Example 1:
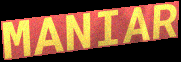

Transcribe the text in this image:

MANIAR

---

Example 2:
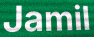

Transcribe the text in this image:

Jamil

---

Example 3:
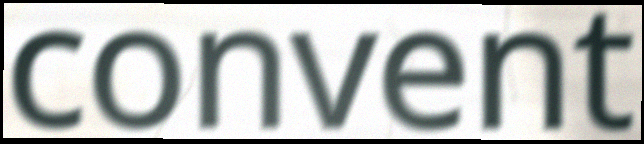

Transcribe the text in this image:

convent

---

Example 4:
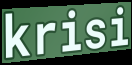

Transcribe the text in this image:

krisi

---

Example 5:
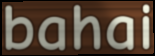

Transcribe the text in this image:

bahai